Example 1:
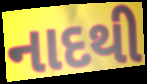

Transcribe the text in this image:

નાદથી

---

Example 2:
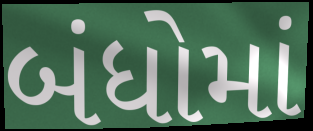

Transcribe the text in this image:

બંધોમાં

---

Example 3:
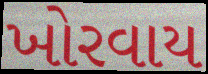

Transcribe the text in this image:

ખોરવાય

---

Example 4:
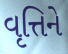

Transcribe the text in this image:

વૃત્તિને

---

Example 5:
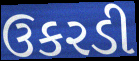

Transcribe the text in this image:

ઉકરડી